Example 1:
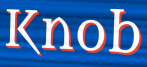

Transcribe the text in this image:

Knob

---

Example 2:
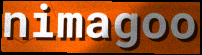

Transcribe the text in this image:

nimagoo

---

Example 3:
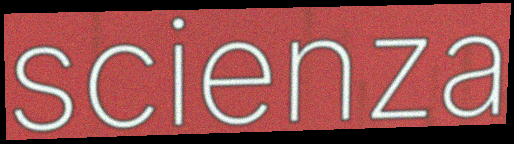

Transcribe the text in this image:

scienza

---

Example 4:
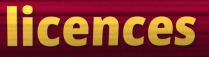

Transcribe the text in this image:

licences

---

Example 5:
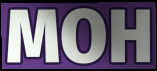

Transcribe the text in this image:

MOH